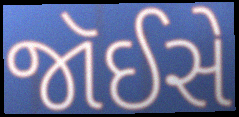
જૉઈસે